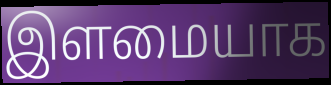
இளமையாக